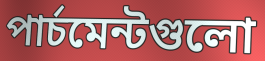
পার্চমেন্টগুলো